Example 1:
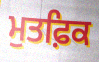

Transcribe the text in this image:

ਮੁਤਫ਼ਿਕ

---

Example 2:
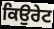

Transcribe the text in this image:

ਕਿਉਰੇਟ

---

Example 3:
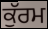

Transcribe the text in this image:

ਕੁੱਰਮ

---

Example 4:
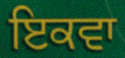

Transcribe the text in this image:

ਇਕਵਾ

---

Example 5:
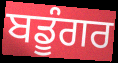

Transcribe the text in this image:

ਬਡੂੰਗਰ